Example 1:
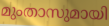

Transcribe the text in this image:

മുംതാസുമായി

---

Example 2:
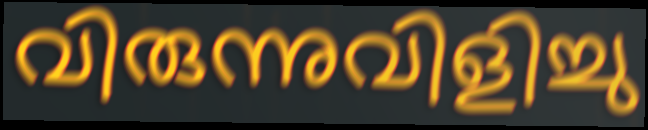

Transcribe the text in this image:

വിരുന്നുവിളിച്ചു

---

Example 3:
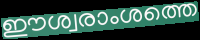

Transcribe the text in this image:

ഈശ്വരാംശത്തെ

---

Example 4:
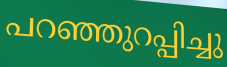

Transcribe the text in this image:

പറഞ്ഞുറപ്പിച്ചു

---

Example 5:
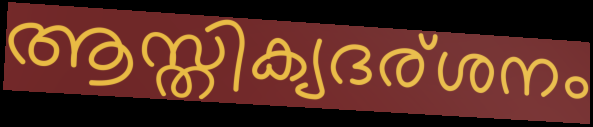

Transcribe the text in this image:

ആസ്തിക്യദര്ശനം